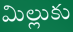
మిల్లుకు